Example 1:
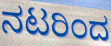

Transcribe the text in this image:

ನಟರಿಂದ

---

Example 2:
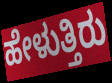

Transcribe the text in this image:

ಹೇಳುತ್ತಿರು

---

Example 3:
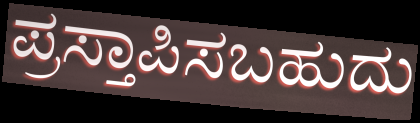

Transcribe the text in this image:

ಪ್ರಸ್ತಾಪಿಸಬಹುದು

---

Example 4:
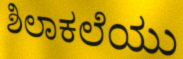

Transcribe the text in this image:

ಶಿಲಾಕಲೆಯು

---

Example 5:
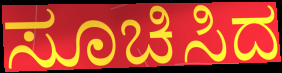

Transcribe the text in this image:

ಸೂಚಿಸಿದ